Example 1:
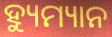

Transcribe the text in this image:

ହ୍ୟୁମ୍ୟାନ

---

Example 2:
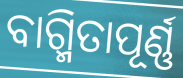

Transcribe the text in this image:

ବାଗ୍ମିତାପୂର୍ଣ୍ଣ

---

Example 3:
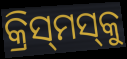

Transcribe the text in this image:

କ୍ରିସ୍‌ମସ୍‌କୁ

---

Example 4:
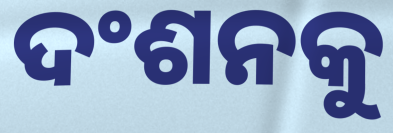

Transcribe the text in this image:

ଦଂଶନକୁ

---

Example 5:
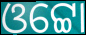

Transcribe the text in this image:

ଓଟ୍ଟୋ